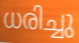
ധരിച്ചു